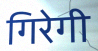
गिरेगी